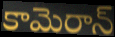
కామెరాన్